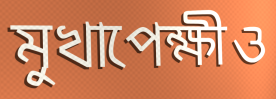
মুখাপেক্ষীও